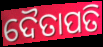
ଦୈତାପତି